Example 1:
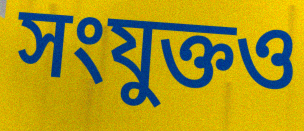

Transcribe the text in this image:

সংযুক্তও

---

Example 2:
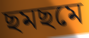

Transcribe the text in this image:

ছমছমে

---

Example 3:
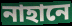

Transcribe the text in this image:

নাহানে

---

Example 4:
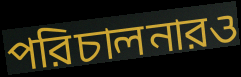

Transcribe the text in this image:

পরিচালনারও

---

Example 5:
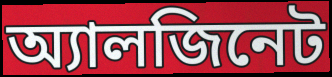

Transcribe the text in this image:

অ্যালজিনেট